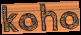
koho